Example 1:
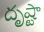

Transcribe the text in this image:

దృష్టా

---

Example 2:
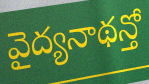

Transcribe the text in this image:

వైద్యనాథన్తో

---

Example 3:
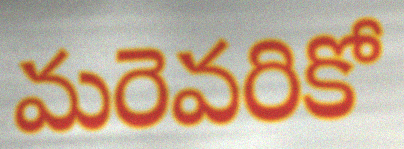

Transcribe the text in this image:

మరెవరికో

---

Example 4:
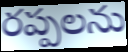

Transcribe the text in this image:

రప్పలను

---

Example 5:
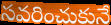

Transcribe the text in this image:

సవరించుకునే